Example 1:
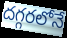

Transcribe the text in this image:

దగ్గరలోనే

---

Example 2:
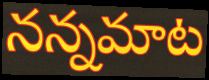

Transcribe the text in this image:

నన్నమాట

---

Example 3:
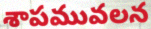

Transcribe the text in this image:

శాపమువలన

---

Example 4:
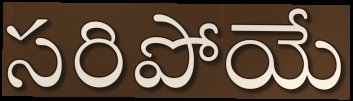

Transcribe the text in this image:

సరిపోయే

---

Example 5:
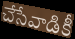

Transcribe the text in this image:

చేసేవాడికీ